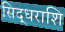
सिद्धराशि